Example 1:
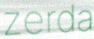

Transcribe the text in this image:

zerda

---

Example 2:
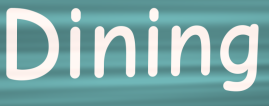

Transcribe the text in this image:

Dining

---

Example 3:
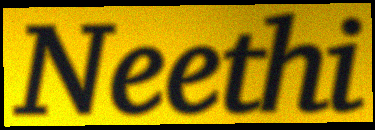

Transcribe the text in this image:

Neethi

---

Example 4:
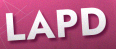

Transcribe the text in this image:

LAPD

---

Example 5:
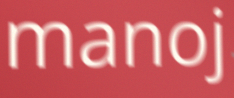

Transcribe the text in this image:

manoj